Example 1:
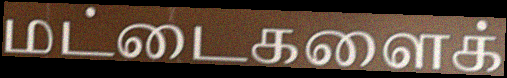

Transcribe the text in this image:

மட்டைகளைக்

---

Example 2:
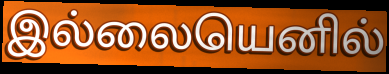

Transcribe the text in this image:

இல்லையெனில்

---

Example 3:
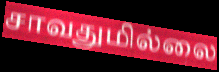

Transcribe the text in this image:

சாவதுமில்லை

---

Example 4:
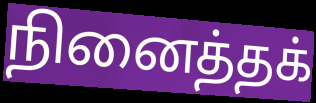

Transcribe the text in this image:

நினைத்தக்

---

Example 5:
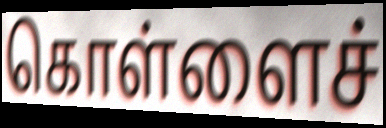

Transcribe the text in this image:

கொள்ளைச்